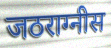
जठराग्नीस